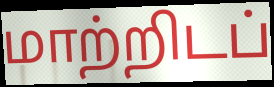
மாற்றிடப்